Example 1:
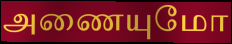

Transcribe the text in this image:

அணையுமோ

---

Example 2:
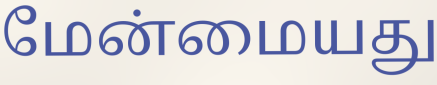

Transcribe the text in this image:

மேன்மையது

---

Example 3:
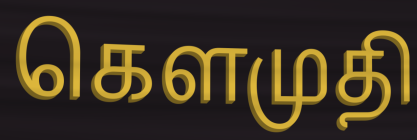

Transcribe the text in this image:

கௌமுதி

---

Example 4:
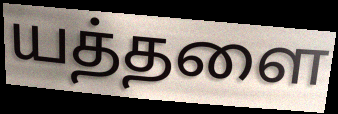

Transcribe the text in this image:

யத்தளை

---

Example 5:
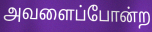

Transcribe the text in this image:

அவளைப்போன்ற